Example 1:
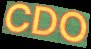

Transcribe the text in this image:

CDO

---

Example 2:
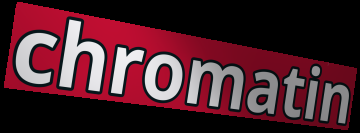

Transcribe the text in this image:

chromatin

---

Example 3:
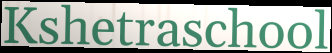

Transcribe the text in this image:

Kshetraschool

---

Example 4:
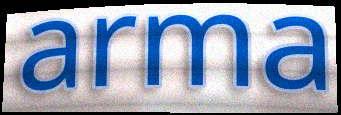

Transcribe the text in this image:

arma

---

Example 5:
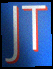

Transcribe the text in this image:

JT